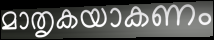
മാതൃകയാകണം